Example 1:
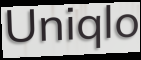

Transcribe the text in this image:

Uniqlo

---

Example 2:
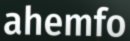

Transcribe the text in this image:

ahemfo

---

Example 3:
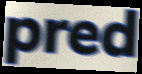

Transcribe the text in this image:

pred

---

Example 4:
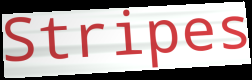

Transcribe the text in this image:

Stripes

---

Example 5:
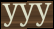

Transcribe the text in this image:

yyy